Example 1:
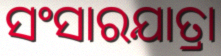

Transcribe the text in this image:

ସଂସାରଯାତ୍ରା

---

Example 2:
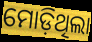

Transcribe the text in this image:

ମୋଡ଼ିଥିଲା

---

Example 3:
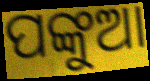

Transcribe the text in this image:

ପଙ୍କୁଆ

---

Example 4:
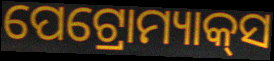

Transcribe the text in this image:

ପେଟ୍ରୋମ୍ୟାକ୍‌ସ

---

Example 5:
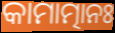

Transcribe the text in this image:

କାମାତ୍ମାନଃ